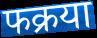
फक्रया